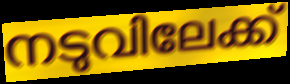
നടുവിലേക്ക്